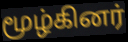
மூழ்கினர்